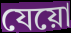
যেয়ো